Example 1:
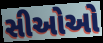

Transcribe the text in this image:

સીઓઓ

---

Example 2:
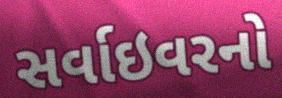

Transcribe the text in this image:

સર્વાઇવરનો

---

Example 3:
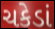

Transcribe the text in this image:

ચકેડાં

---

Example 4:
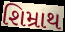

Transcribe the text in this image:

શિમ્રાથ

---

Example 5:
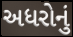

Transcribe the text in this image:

અધરોનું